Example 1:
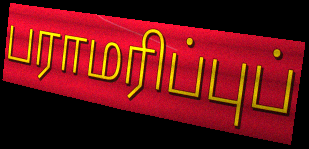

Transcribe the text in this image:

பராமரிப்புப்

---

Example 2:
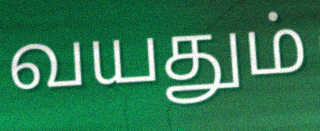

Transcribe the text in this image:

வயதும்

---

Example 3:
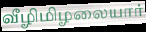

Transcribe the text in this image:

வீழிமிழலையார்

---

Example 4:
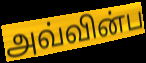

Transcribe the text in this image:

அவ்வின்ப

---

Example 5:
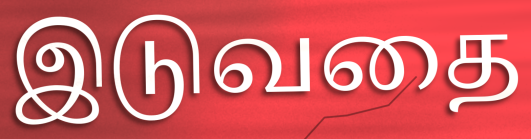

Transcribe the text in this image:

இடுவதை